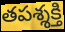
తపశ్శక్తి